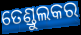
ତେଣ୍ଡୁଲକର